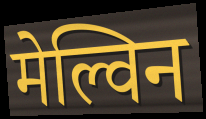
मेल्विन